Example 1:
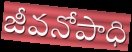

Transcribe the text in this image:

జీవనోపాధి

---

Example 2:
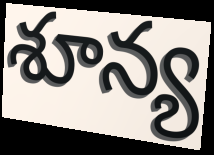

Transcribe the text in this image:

శూన్య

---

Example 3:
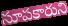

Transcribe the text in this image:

సూపకారుని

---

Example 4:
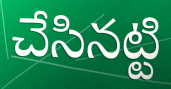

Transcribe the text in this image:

చేసినట్టి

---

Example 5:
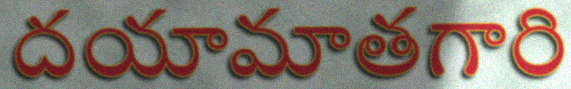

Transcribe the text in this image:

దయామాతగారి